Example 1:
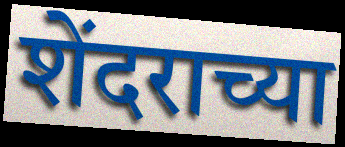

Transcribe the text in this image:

शेंदराच्या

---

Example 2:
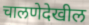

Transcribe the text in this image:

चालणेदेखील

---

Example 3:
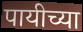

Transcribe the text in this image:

पायीच्या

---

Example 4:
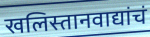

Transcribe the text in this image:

खलिस्तानवाद्यांचं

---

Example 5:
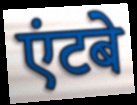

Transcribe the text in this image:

एंटबे